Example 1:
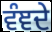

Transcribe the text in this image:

ਵੰਞਦੇ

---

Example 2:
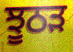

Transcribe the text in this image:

ਝੂਠੜ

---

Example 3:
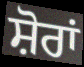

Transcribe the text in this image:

ਸ਼ੋਰਾਂ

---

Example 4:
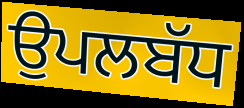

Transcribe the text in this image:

ਉਪਲਬੱਧ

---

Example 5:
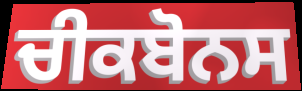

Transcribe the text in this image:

ਚੀਕਬੋਨਸ